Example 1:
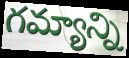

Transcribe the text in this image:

గమ్యాన్ని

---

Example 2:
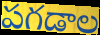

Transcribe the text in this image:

పగడాల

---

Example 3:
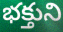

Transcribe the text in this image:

భక్తుని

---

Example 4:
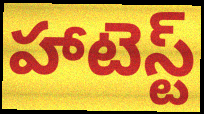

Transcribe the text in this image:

హాటెస్ట్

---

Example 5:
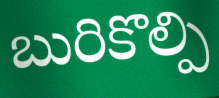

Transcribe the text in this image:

బురికొల్పి